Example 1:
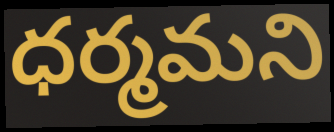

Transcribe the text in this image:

ధర్మమని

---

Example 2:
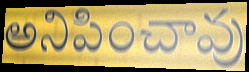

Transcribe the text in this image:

అనిపించావు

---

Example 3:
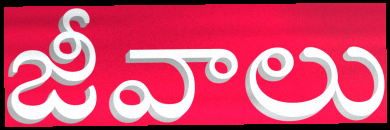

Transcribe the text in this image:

జీవాలు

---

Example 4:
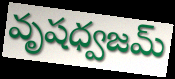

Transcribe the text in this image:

వృషధ్వజమ్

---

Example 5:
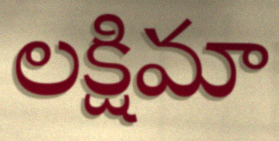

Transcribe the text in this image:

లక్షిమా